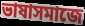
ভাষাসমাজে